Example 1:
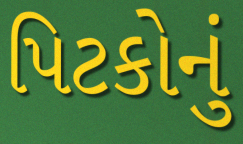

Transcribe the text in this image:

પિટકોનું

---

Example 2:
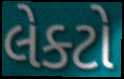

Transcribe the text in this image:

લેક્ટો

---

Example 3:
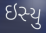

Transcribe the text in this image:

ઇસ્યુ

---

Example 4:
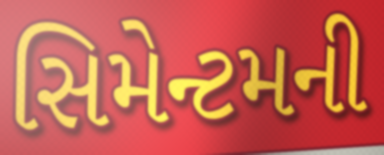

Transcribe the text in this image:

સિમેન્ટમની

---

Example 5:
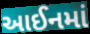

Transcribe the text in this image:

આઈનમાં